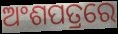
ଅଂଶପତ୍ରରେ